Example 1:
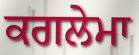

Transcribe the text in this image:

ਕਗਲੇਮਾ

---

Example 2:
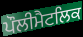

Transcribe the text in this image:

ਪੌਲੀਮੈਟਲਿਕ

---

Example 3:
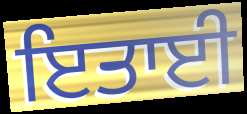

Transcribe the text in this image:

ਇਤਾਈ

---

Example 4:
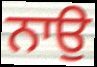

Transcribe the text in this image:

ਨਾਉ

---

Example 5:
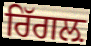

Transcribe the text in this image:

ਰਿੱਗਲ਼